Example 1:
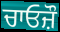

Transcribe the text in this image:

ਚਾਓਜ਼ੌ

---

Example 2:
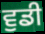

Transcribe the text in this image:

ਵੁਡੀ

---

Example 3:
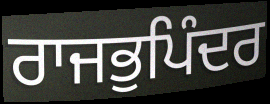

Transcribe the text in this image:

ਰਾਜਭੁਪਿੰਦਰ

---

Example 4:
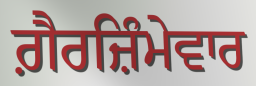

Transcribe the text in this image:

ਗ਼ੈਰਜ਼ਿੰਮੇਵਾਰ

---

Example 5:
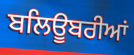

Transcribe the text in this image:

ਬਲਿਊਬਰੀਆਂ